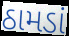
ઠામડાં